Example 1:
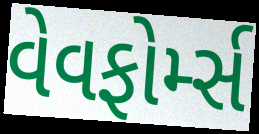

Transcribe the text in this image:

વેવફોર્મ્સ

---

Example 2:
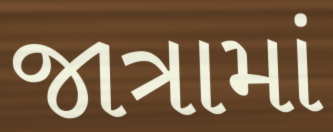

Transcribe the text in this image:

જાત્રામાં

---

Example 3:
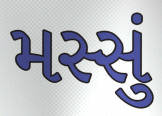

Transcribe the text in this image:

મસ્સું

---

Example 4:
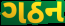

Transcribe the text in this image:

ગઠન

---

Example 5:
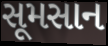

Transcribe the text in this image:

સૂમસાન